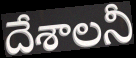
దేశాలనీ